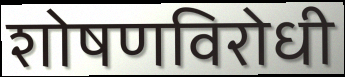
शोषणविरोधी